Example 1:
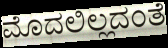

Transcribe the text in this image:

ಮೊದಲಿಲ್ಲದಂತೆ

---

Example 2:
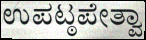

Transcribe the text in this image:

ಉಪಟ್ಠಪೇತ್ವಾ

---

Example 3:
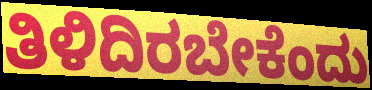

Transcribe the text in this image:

ತಿಳಿದಿರಬೇಕೆಂದು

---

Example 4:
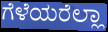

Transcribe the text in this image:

ಗೆಳೆಯರೆಲ್ಲಾ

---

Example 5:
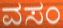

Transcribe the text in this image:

ವಸಂ